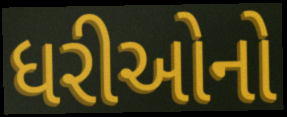
ધરીઓનો